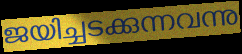
ജയിച്ചടക്കുന്നവന്നു